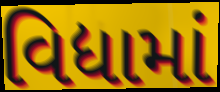
વિદ્યામાં